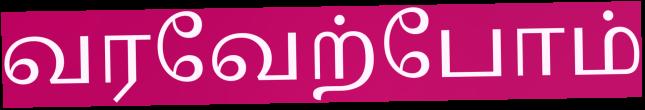
வரவேற்போம்